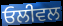
ਓਲੀਵਲ